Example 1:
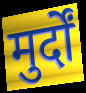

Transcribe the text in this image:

मुर्दों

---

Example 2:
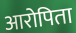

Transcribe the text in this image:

आरोपिता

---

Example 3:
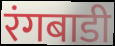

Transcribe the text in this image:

रंगबाडी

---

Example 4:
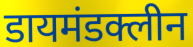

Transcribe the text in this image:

डायमंडक्लीन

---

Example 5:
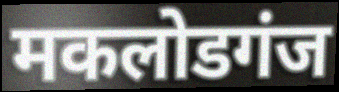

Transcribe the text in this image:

मकलोडगंज